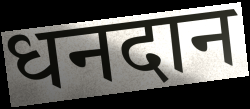
धनदान